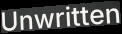
Unwritten